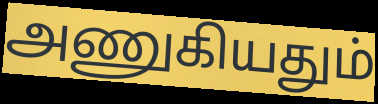
அணுகியதும்